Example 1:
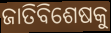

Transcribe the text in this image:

ଜାତିବିଶେଷକୁ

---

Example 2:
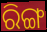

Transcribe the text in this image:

ରିଙ୍ଗ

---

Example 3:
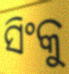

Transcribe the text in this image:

ସିଂକୁ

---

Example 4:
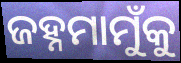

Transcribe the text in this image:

ଜହ୍ନମାମୁଁକୁ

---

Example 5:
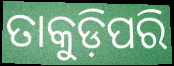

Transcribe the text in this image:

ତାକୁଡ଼ିପରି